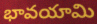
భావయామి